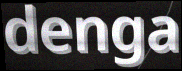
denga